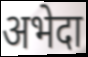
अभेदा